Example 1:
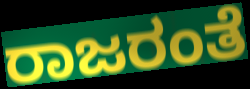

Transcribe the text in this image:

ರಾಜರಂತೆ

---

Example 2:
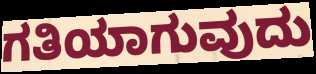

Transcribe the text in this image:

ಗತಿಯಾಗುವುದು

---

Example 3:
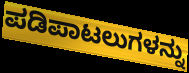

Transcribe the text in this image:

ಪಡಿಪಾಟಲುಗಳನ್ನು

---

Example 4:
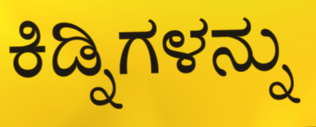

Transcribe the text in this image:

ಕಿಡ್ನಿಗಳನ್ನು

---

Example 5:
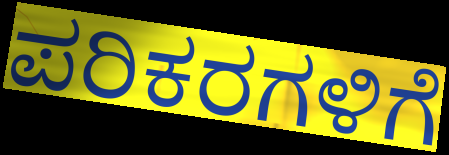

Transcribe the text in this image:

ಪರಿಕರಗಳಿಗೆ